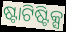
ଷ୍ଟାଟିଷ୍ଟିକ୍ସ